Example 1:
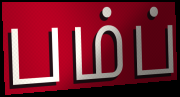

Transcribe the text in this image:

பம்ப்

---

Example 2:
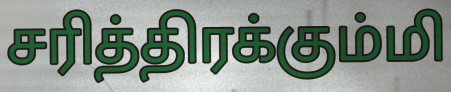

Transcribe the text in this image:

சரித்திரக்கும்மி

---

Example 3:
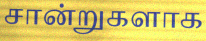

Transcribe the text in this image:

சான்றுகளாக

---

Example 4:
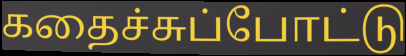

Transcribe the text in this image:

கதைச்சுப்போட்டு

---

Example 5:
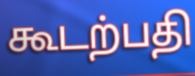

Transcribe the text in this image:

கூடற்பதி